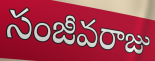
సంజీవరాజు